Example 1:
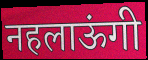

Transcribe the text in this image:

नहलाऊंगी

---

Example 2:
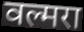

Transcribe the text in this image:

वल्मरा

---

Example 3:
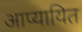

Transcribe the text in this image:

आप्यायित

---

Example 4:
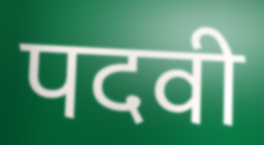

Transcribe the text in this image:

पदवी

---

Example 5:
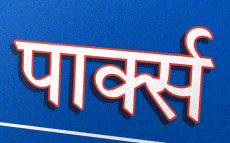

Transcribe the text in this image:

पार्क्स